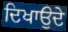
ਦਿਖਾਉਦੇ